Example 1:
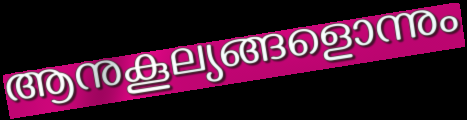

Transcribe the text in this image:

ആനുകൂല്യങ്ങളൊന്നും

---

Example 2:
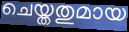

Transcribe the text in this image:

ചെയ്തതുമായ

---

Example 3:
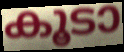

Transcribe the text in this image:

കൂടാ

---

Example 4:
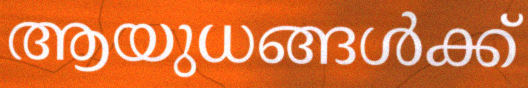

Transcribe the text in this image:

ആയുധങ്ങൾക്ക്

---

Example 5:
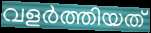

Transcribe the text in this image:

വളർത്തിയത്